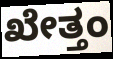
ಖೇತ್ತಂ